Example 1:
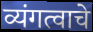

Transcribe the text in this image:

व्यंगत्वाचे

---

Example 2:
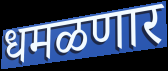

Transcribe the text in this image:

धमळणार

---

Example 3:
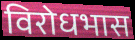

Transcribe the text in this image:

विरोधभास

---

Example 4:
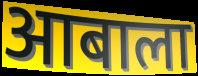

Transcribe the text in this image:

आबाला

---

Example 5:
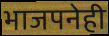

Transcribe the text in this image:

भाजपनेही